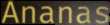
Ananas